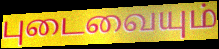
புடைவையும்